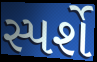
સ્પર્શે